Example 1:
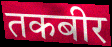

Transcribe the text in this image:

तकबीर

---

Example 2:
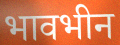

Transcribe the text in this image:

भावभीन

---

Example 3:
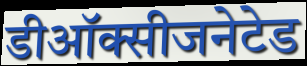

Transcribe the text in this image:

डीऑक्सीजनेटेड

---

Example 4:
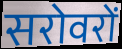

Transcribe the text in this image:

सरोवरों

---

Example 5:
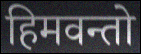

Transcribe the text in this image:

हिमवन्तो